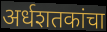
अर्धशतकांचा